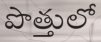
పొత్తులో